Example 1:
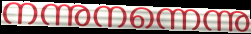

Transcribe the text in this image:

നന്നുനന്നെന്നു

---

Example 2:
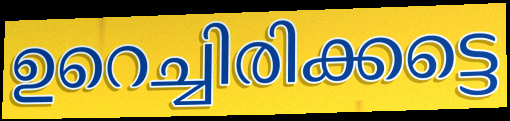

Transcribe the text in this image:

ഉറെച്ചിരിക്കട്ടെ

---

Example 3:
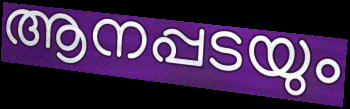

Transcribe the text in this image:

ആനപ്പടയും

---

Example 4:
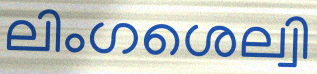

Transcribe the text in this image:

ലിംഗശെല്വി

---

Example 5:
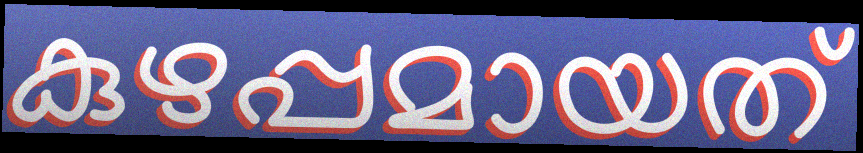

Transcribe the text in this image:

കുഴപ്പമായത്